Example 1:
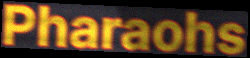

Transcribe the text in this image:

Pharaohs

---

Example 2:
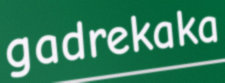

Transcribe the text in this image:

gadrekaka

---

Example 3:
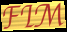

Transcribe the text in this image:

FIM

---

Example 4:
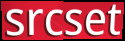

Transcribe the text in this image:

srcset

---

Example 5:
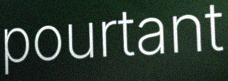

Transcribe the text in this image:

pourtant